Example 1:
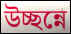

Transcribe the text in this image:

উচ্ছন্নে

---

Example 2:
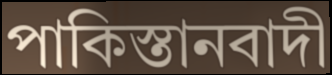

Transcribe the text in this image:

পাকিস্তানবাদী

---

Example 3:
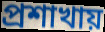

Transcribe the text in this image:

প্রশাখায়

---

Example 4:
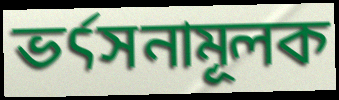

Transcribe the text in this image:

ভর্ৎসনামূলক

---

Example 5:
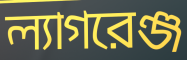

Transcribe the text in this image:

ল্যাগরেঞ্জ